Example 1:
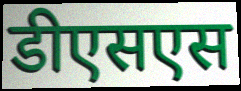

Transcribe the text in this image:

डीएसएस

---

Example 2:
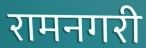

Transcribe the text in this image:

रामनगरी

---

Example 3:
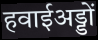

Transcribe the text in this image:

हवाईअड्डों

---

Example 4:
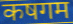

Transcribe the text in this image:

कषगम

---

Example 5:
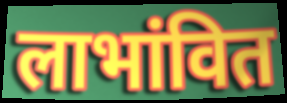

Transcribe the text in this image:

लाभांवित